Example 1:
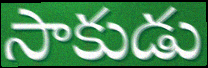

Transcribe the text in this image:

సాకుడు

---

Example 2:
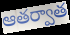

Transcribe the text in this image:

ఆతర్వాత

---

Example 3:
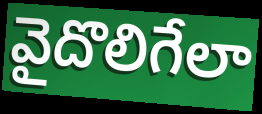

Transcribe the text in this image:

వైదొలిగేలా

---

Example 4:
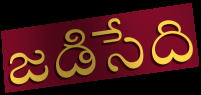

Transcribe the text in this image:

జడిసేది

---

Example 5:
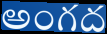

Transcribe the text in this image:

అంగద